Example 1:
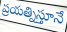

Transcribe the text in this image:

ప్రయత్నిస్తూనే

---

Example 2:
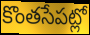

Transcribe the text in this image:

కొంతసేపట్లో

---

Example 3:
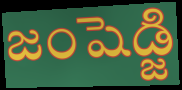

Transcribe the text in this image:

జంషెడ్జి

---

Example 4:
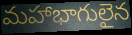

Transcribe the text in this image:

మహాభాగులైన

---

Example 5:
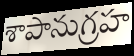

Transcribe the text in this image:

శాపానుగ్రహ